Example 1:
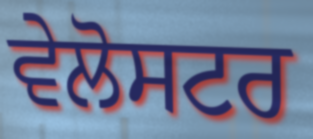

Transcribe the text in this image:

ਵੇਲੋਸਟਰ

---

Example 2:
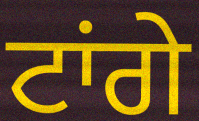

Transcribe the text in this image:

ਟਾਂਗੇ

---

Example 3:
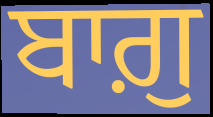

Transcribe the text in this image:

ਬਾਗ਼ੁ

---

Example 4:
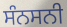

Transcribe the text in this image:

ਸੰਨਸਨੀ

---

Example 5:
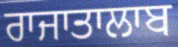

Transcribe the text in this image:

ਰਾਜਾਤਾਲਾਬ